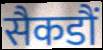
सैकडौं